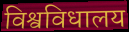
विश्वविधालय